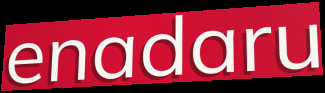
enadaru